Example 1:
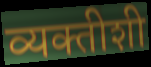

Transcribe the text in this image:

व्यक्‍तीशी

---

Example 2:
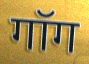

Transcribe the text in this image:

गॉग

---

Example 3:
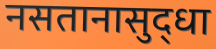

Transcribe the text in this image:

नसतानासुद्धा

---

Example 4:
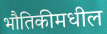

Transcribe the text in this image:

भौतिकीमधील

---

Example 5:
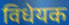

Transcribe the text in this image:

विधेयक